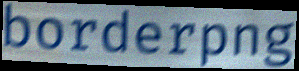
borderpng